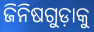
ଜିନିଷଗୁଡ଼ାକୁ